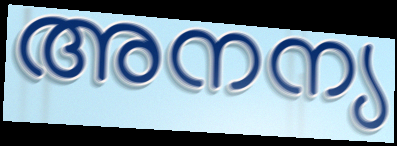
അനന്യ